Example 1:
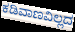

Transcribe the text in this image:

ಕಡಿವಾಣವಿಲ್ಲದ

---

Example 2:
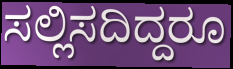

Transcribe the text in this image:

ಸಲ್ಲಿಸದಿದ್ದರೂ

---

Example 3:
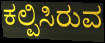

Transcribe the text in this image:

ಕಲ್ಪಿಸಿರುವ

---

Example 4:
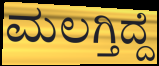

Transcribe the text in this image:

ಮಲಗ್ತಿದ್ದೆ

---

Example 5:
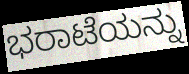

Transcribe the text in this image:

ಭರಾಟೆಯನ್ನು